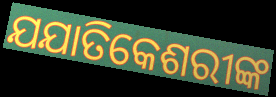
ଯଯାତିକେଶରୀଙ୍କ